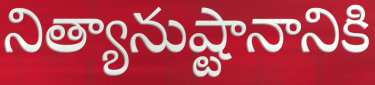
నిత్యానుష్టానానికి